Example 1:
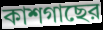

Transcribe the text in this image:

কাশগাছের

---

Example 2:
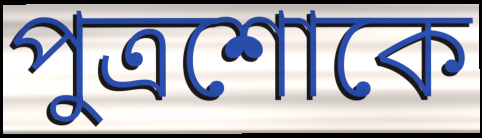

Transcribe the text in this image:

পুত্রশোকে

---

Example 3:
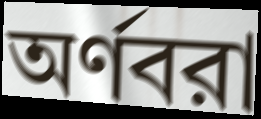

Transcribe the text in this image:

অর্ণবরা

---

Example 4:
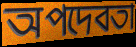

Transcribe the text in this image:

অপদেবতা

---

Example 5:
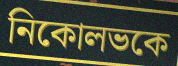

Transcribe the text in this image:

নিকোলভকে